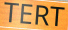
TERT